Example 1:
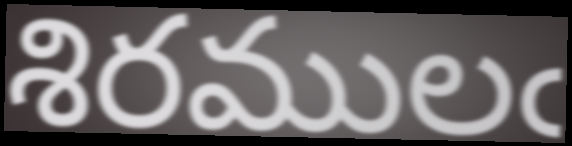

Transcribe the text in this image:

శిరములఁ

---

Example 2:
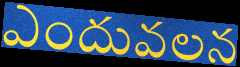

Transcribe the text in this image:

ఎందువలన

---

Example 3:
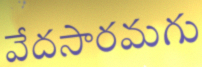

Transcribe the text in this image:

వేదసారమగు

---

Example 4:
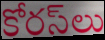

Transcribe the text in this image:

కోరస్‌లు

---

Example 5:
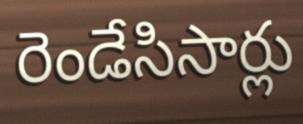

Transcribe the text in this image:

రెండేసిసార్లు